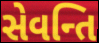
સેવન્તિ